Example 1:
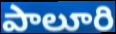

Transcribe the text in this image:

పాలూరి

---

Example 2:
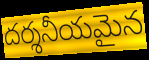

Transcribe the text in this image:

దర్శనీయమైన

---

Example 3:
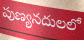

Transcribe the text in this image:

పుణ్యనదులలో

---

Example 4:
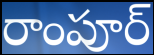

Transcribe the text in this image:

రాంపూర్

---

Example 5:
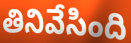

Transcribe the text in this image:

తినివేసింది